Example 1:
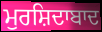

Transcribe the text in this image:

ਮੁਰਸ਼ਿਦਾਬਾਦ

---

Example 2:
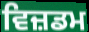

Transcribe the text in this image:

ਵਿਜ਼ਡਮ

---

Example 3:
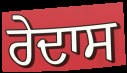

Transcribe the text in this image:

ਰੇਦਾਸ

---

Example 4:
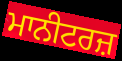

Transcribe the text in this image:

ਮਾਨੀਟਰਜ਼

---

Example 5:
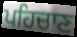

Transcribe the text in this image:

ਪਹਿਚਾਣ